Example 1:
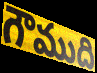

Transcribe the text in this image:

గౌముది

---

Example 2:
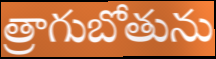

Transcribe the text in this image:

త్రాగుబోతును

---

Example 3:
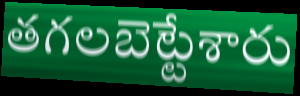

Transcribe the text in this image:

తగలబెట్టేశారు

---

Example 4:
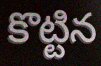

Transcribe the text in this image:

కొట్టిన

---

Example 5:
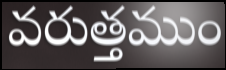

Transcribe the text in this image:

వరుత్తముం